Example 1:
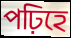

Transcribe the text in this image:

পঢ়িহে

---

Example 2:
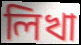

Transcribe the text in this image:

লিখা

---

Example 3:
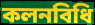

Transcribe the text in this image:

কলনবিধি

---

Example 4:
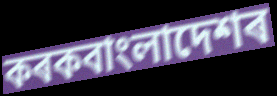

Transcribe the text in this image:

কৰকবাংলাদেশৰ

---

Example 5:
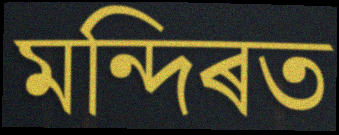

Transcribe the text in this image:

মন্দিৰত